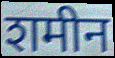
शमीन